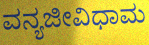
ವನ್ಯಜೀವಿಧಾಮ